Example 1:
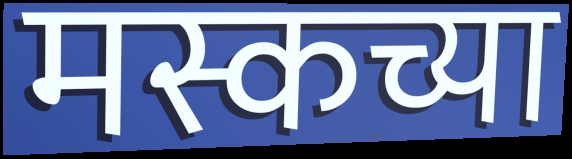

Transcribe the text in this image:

मस्कच्या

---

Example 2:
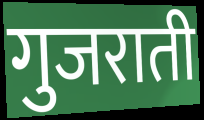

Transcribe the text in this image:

गुजराती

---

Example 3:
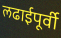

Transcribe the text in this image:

लढाईपूर्वी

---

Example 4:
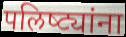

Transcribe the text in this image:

पलिष्ट्यांना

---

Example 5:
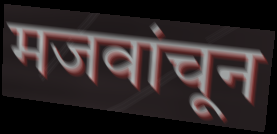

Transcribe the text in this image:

मजवांचून